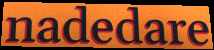
nadedare